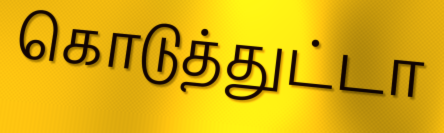
கொடுத்துட்டா